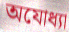
অযোধ্যা